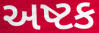
અષ્ટક